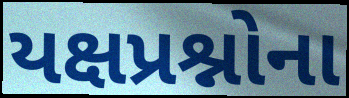
યક્ષપ્રશ્નોના